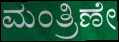
ಮಂತ್ರಿಣೇ